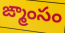
ఙ్మాంసం